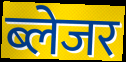
ब्लेजर